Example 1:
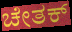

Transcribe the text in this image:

ಚೇತಕ್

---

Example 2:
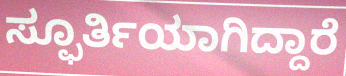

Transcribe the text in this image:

ಸ್ಫೂರ್ತಿಯಾಗಿದ್ದಾರೆ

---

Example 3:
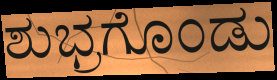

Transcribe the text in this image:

ಶುಭ್ರಗೊಂಡು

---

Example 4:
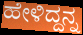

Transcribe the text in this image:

ಹೇಳಿದ್ದನ್ನ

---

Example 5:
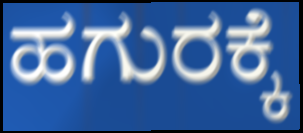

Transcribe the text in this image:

ಹಗುರಕ್ಕೆ